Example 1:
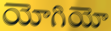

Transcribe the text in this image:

యోగియో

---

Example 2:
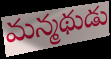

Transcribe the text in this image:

మన్మథుడు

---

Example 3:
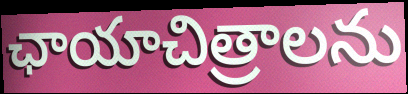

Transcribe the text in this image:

ఛాయాచిత్రాలను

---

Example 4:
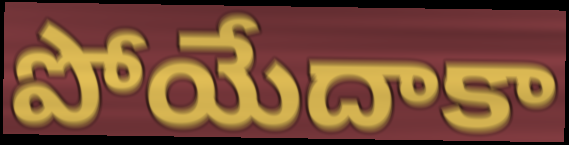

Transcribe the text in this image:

పోయేదాకా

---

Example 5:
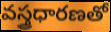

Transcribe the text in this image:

వస్త్రధారణతో